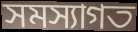
সমস্যাগত